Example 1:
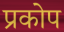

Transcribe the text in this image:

प्रकोप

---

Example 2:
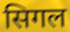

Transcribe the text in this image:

सिगल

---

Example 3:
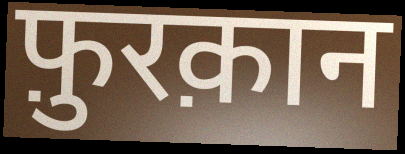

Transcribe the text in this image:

फ़ुरक़ान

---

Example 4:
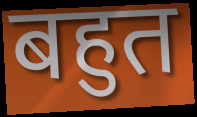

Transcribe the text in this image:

बहुत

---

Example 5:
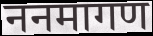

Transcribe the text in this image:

ननमागण